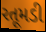
રતૂમડી